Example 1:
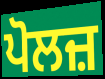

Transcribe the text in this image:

ਪੋਲਜ਼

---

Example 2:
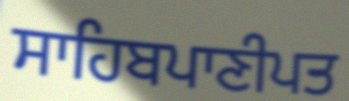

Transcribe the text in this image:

ਸਾਹਿਬਪਾਣੀਪਤ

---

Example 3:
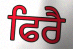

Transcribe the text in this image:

ਫਿਰੈ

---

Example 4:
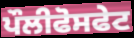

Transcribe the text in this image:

ਪੌਲੀਫੋਸਫੇਟ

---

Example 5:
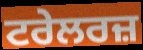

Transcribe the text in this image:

ਟਰੇਲਰਜ਼